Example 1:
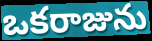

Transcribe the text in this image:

ఒకరాజును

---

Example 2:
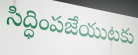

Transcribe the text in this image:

సిద్ధింపజేయుటకు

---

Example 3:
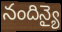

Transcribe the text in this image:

నందిన్యై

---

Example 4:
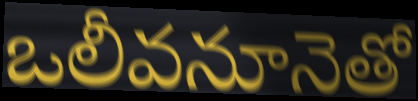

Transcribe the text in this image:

ఒలీవనూనెతో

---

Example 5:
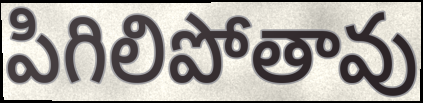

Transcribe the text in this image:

పిగిలిపోతావు